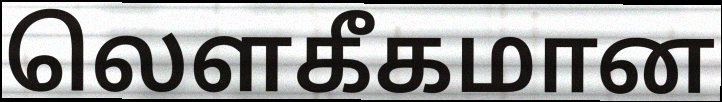
லெளகீகமான